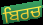
ਬਿਰਚ